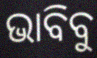
ଭାବିବୁ